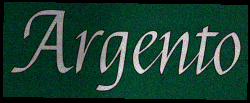
Argento